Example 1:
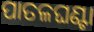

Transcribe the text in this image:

ପାତଳଘଣ୍ଟା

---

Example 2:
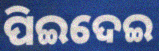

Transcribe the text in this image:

ପିଇଦେଇ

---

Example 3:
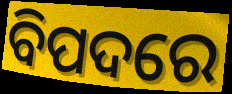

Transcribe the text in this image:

ବିପଦରେ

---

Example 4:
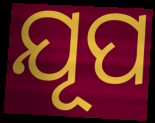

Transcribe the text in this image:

ଯୂପ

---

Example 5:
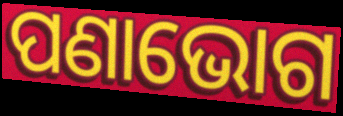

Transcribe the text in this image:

ପଣାଭୋଗ